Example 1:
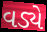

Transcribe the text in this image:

વડ્યે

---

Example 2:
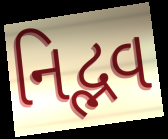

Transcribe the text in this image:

નિદ્ભવ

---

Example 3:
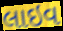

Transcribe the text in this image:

લાઇવ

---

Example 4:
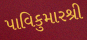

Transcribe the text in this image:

પાવિકુમારશ્રી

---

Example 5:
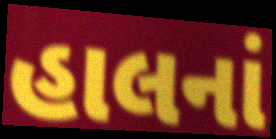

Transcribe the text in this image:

હાલનાં